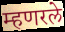
म्हणरले